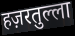
हज़रतुल्ला